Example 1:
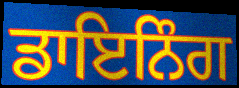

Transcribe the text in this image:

ਡਾਇਨਿੰਗ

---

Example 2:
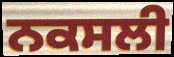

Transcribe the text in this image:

ਨਕਸਲੀ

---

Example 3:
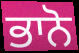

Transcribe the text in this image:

ਭਾਨੋ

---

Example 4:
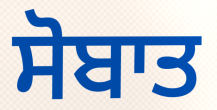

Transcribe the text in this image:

ਸੋਬਾਤ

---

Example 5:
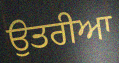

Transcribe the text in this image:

ਉਤਰੀਆ